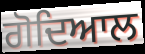
ਗੋਦਿਆਲ